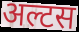
अल्टस